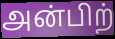
அன்பிற்